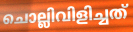
ചൊല്ലിവിളിച്ചത്